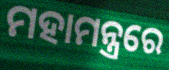
ମହାମନ୍ତ୍ରରେ